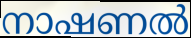
നാഷണൽ